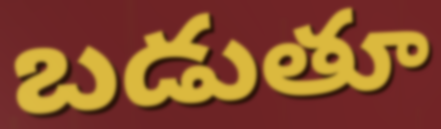
బడుతూ